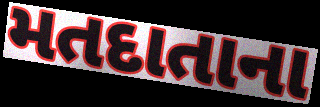
મતદાતાના